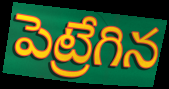
పెట్రేగిన